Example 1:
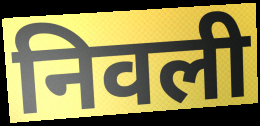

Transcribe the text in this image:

निवली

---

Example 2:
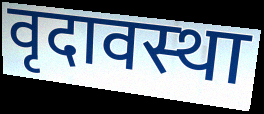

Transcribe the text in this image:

वृदावस्था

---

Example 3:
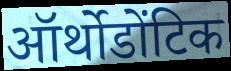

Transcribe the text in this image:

ऑर्थोडोंटिक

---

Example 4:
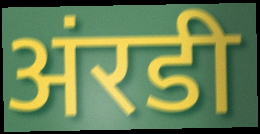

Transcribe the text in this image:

अंरडी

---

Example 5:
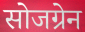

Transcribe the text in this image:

सोजग्रेन